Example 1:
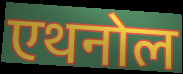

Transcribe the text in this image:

एथनोल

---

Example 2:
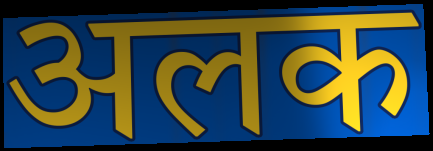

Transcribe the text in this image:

अलक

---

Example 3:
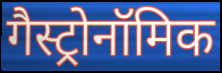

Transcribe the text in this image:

गैस्ट्रोनॉमिक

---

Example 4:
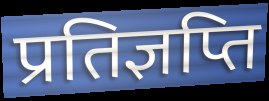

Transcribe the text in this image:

प्रतिज्ञप्ति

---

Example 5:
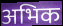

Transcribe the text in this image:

अभिक